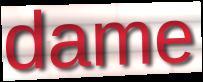
dame